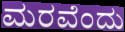
ಮರವೆಂದು